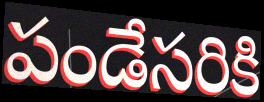
పండేసరికి